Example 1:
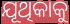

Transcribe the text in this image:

ଯୂଥିକାକୁ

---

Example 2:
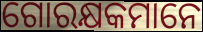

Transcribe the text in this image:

ଗୋରକ୍ଷକମାନେ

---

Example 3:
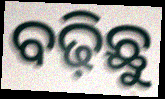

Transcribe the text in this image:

ବଢ଼ିଛୁ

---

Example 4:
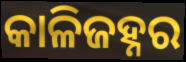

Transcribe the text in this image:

କାଳିଜହ୍ନର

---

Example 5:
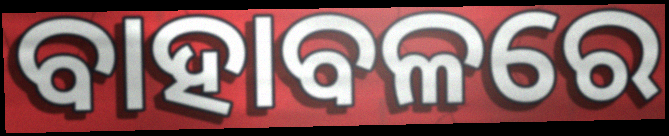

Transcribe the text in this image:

ବାହାବଳରେ